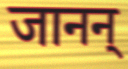
जानन्